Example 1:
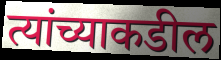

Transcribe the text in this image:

त्यांच्याकडील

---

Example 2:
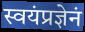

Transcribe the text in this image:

स्वयंप्रज्ञेनं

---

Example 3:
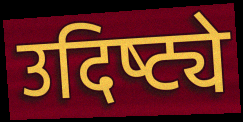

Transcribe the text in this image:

उदिष्ट्ये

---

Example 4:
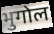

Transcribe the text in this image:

भुगोल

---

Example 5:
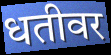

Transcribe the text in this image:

धतीवर